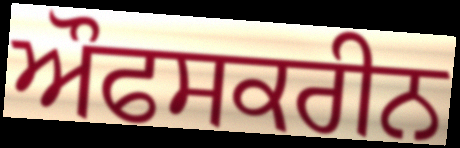
ਔਫਸਕਰੀਨ